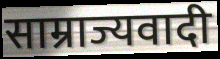
साम्राज्यवादी